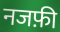
नजफ़ी